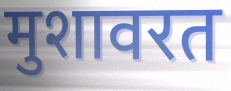
मुशावरत